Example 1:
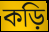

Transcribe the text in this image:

কড়ি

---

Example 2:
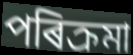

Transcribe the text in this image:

পৰিক্ৰমা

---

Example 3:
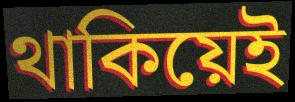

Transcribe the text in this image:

থাকিয়েই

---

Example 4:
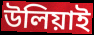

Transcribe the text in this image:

উলিয়াই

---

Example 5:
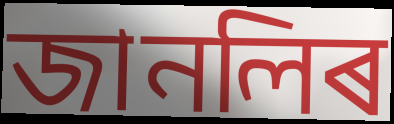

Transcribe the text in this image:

জানলিৰ